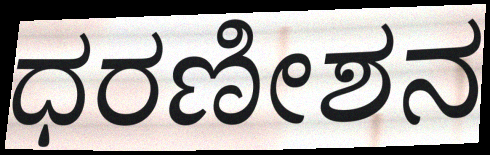
ಧರಣೀಶನ